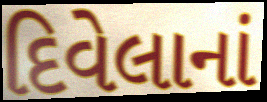
દિવેલાનાં